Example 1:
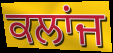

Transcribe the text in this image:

ਕਲਾਂਜ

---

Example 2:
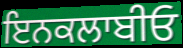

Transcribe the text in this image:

ਇਨਕਲਾਬੀਓ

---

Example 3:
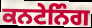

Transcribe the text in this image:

ਕਨਟੇਨਿੰਗ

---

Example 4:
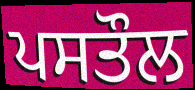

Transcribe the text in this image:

ਪਸਤੌਲ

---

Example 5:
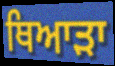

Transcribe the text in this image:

ਥਿਆੜਾ